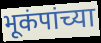
भूकंपांच्या